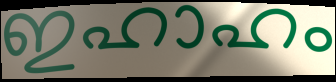
ഇഹാഹം